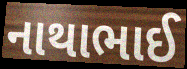
નાથાભાઈ